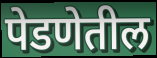
पेडणेतील